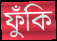
ফুঁকি